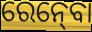
ରେନ୍‍ବୋ